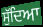
ਸੁੱਦਿਆ